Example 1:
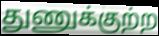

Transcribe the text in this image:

துணுக்குற்ற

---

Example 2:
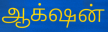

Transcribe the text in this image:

ஆக்‌ஷன்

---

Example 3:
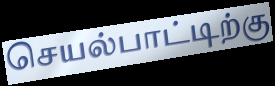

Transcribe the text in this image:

செயல்பாட்டிற்கு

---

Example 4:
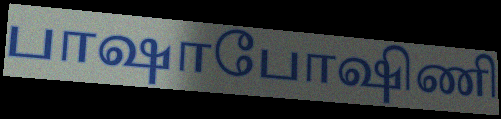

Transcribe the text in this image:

பாஷாபோஷிணி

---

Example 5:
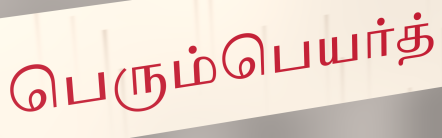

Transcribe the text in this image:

பெரும்பெயர்த்